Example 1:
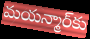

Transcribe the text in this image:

మయన్మార్‌కు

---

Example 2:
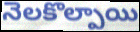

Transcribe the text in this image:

నెలకొల్పాయి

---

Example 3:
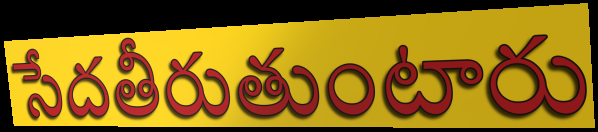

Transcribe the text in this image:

సేదతీరుతుంటారు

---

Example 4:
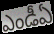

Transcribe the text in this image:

ఎండీఏ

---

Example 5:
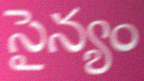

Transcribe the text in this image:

సైన్యం